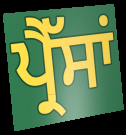
ਪ੍ਰੈੱਸਾਂ